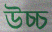
উচ্চ